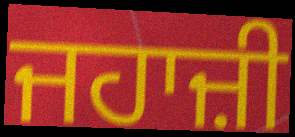
ਜਹਾਜ਼ੀ